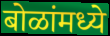
बोळांमध्ये